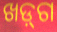
ଖଡ଼୍‌ଗ